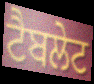
ਟੈਬਲੇਟ